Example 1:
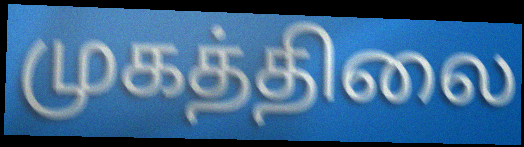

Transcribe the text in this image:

முகத்திலை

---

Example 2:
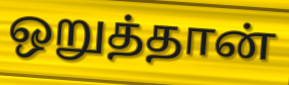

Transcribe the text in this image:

ஒறுத்தான்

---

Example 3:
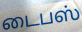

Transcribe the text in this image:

டைபஸ்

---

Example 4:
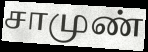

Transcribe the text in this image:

சாமுண்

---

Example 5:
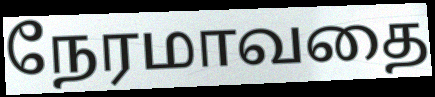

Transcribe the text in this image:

நேரமாவதை